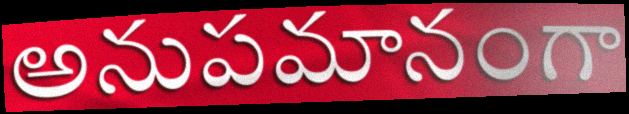
అనుపమానంగా